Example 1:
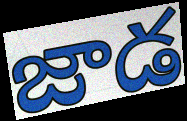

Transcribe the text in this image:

జాడ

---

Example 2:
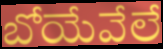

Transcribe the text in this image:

బోయేవేలే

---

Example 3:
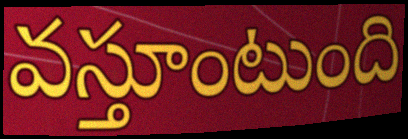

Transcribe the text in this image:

వస్తూంటుంది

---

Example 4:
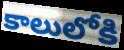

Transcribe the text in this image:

కాలులోకి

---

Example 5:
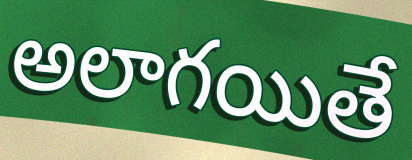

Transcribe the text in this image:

అలాగయితే